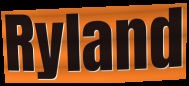
Ryland